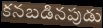
కనబడినపుడు